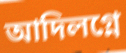
আদিলগ্নে